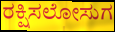
ರಕ್ಷಿಸಲೋಸುಗ